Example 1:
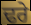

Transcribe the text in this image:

ਢਰੇ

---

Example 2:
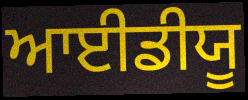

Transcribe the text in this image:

ਆਈਡੀਯੂ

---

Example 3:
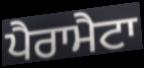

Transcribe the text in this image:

ਪੈਰਾਮੈਟਾ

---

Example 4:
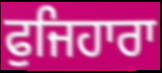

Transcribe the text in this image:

ਫੁਜਿਹਾਰਾ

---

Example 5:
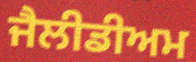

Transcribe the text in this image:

ਜੈਲੀਡੀਅਮ